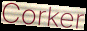
Corker